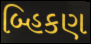
બ્હિકણ